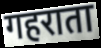
गहराता